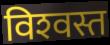
विश्‍वस्त